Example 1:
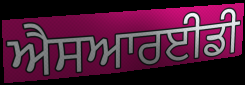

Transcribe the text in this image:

ਐਸਆਰਈਡੀ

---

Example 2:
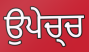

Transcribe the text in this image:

ਉਪੇਚ੍ਚ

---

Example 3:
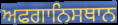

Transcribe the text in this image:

ਅਫਗਾਨਿਸਥਾਨ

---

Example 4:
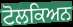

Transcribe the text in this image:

ਟੋਲਕਿਅਨ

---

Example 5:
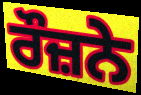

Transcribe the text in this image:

ਰੌਜ਼ਨੇ